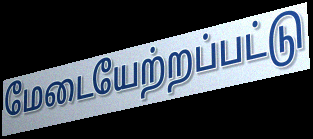
மேடையேற்றப்பட்டு